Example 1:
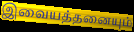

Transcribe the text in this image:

இவையத்தனையும்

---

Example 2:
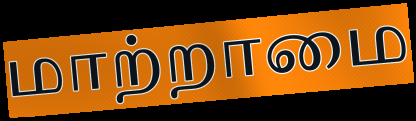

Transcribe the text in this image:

மாற்றாமை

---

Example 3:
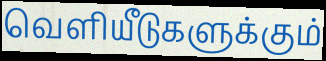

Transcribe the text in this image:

வெளியீடுகளுக்கும்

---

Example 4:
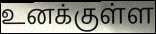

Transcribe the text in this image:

உனக்குள்ள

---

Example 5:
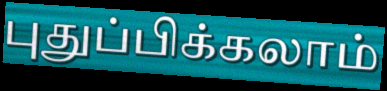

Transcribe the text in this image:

புதுப்பிக்கலாம்